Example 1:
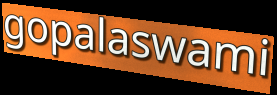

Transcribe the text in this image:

gopalaswami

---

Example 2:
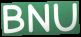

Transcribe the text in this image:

BNU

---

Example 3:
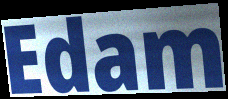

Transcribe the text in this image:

Edam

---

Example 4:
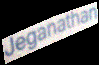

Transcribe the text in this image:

Jeganathan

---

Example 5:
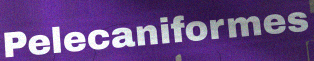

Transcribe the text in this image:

Pelecaniformes